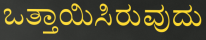
ಒತ್ತಾಯಿಸಿರುವುದು